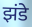
झंडे